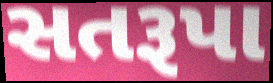
સતરૂપા